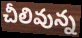
చీలివున్న